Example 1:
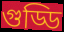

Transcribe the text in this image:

গুড্ডি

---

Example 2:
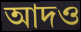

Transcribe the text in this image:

আদও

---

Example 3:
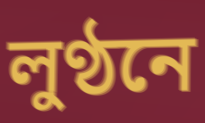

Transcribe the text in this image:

লুণ্ঠনে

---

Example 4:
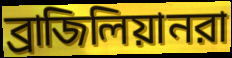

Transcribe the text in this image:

ব্রাজিলিয়ানরা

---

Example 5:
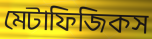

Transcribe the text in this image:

মেটাফিজিকস